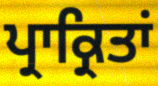
ਪ੍ਰਾਕ੍ਰਿਤਾਂ